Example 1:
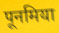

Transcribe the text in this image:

पूनमिया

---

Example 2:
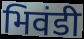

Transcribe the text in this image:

भिवंडी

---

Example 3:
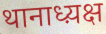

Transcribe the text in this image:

थानाध्य़क्ष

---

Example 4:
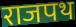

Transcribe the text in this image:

राजपथ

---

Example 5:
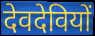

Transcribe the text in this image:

देवदेवियों